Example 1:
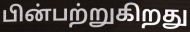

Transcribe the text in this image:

பின்பற்றுகிறது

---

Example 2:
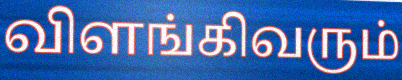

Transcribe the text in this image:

விளங்கிவரும்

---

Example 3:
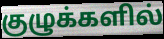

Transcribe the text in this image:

குழுக்களில்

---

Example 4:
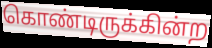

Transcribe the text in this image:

கொண்டிருக்கின்ற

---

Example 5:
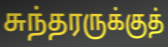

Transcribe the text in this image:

சுந்தரருக்குத்